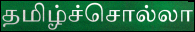
தமிழ்ச்சொல்லா